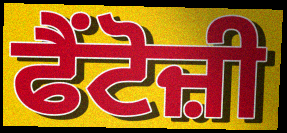
ਫੈਂਟੋਜ਼ੀ